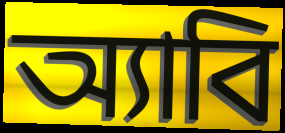
অ্যাবি